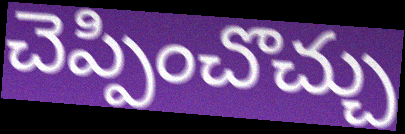
చెప్పించొచ్చు